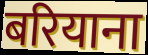
बरियाना